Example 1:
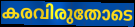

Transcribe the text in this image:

കരവിരുതോടെ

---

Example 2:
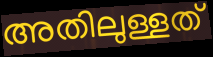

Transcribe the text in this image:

അതിലുള്ളത്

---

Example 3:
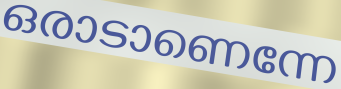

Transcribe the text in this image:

ഒരാടാണെന്നേ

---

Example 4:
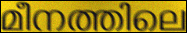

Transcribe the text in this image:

മീനത്തിലെ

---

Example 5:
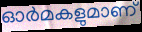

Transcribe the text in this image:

ഓർമകളുമാണ്